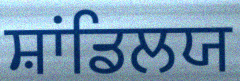
ਸ਼ਾਂਡਿਲਯ